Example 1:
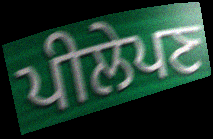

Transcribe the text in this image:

ਪੀਲੇਪਣ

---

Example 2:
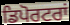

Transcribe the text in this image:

ਡਿਪੋਰਟਰਾਂ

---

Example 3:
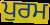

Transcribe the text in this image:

ਪੁਰਮ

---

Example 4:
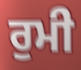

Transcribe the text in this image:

ਰੁਮੀ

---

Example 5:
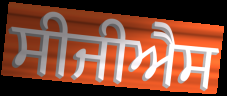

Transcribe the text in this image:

ਸੀਜੀਐਸ